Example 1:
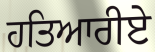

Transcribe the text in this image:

ਹਤਿਆਰੀਏ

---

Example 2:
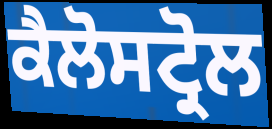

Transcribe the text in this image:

ਕੈਲੋਸਟ੍ਰੋਲ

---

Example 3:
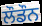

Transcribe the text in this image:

ਲੌਡੌਨ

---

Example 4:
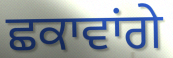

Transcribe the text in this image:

ਛਕਾਵਾਂਗੇ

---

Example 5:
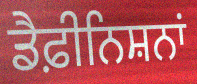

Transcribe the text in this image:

ਡੈਫ਼ੀਨਿਸ਼ਨਾਂ